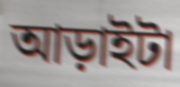
আড়াইটা